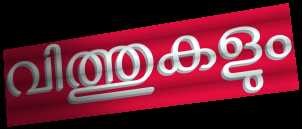
വിത്തുകളും